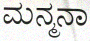
ಮನ್ಮನಾ